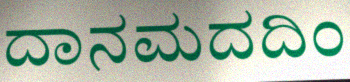
ದಾನಮದದಿಂ